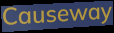
Causeway